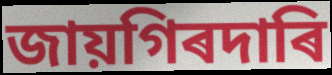
জায়গিৰদাৰি